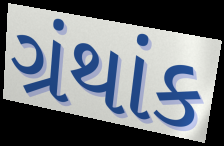
ગ્રંથાંક